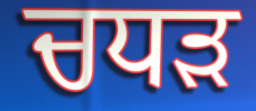
ਚਧੜ